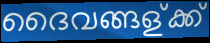
ദൈവങ്ങള്ക്ക്